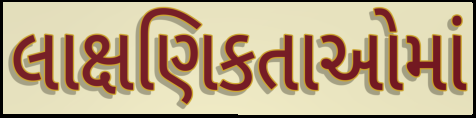
લાક્ષણિકતાઓમાં